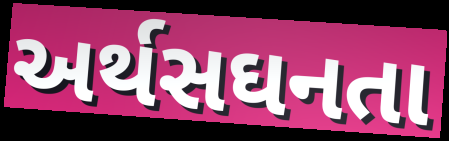
અર્થસઘનતા